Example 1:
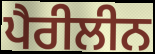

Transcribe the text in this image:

ਪੈਰੀਲੀਨ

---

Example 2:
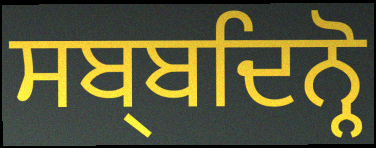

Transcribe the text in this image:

ਸਬ੍ਬਦਿਨ੍ਨੋ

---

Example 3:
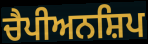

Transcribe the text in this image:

ਚੈਪੀਅਨਸ਼ਿਪ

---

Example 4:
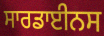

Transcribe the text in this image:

ਸਾਰਡਾਈਨਸ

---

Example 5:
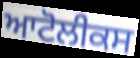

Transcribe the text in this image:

ਆਟੋਲੀਕਸ